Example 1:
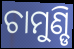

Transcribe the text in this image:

ଚାମୁଣ୍ଡି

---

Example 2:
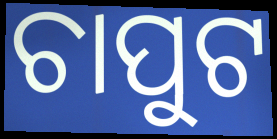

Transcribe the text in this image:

ଚାପୁଟ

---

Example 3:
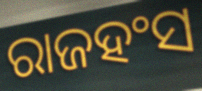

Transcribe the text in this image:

ରାଜହଂସ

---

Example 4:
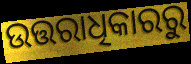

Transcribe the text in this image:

ଉତ୍ତରାଧିକାରରୁ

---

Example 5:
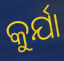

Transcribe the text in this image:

କୁର୍ଯା